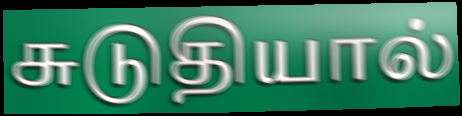
சுடுதியால்